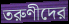
তরুণীদের